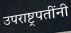
उपराष्ट्रपतींनी